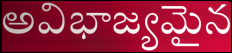
అవిభాజ్యమైన